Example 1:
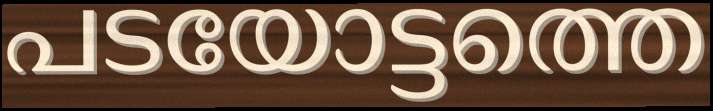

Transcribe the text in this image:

പടയോട്ടത്തെ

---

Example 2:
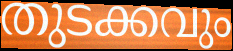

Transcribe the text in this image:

തുടക്കവും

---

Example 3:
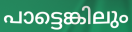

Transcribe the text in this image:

പാട്ടെങ്കിലും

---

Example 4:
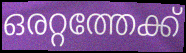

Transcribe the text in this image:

ഒരറ്റത്തേക്ക്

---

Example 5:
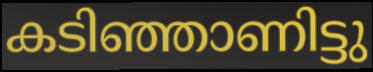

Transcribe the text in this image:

കടിഞ്ഞാണിട്ടു